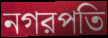
নগরপতি